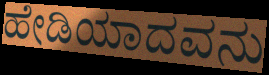
ಹೇಡಿಯಾದವನು